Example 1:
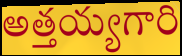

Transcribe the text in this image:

అత్తయ్యగారి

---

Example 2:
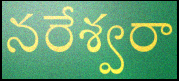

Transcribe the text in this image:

నరేశ్వరా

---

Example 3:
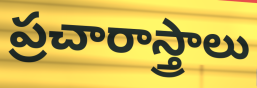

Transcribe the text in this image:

ప్రచారాస్త్రాలు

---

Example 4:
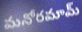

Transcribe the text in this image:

మనోరమామ్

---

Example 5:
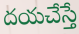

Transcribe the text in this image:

దయచేస్తే